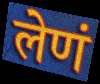
लेणं